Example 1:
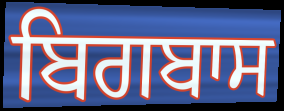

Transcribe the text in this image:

ਬਿਗਬਾਸ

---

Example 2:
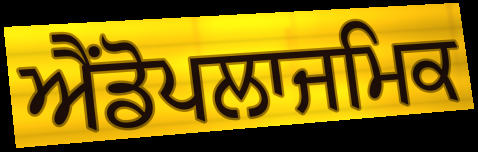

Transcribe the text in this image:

ਐਂਡੋਪਲਾਜਮਿਕ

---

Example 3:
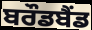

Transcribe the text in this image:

ਬਰੌਡਬੈਂਡ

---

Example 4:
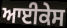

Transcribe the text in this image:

ਆਈਕੇਸ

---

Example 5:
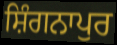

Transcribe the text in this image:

ਸ਼ਿੰਗਨਾਪੁਰ